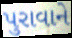
પુરાવાને